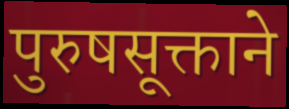
पुरुषसूक्ताने